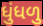
ધુંધળુ